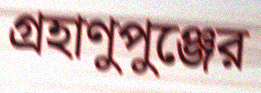
গ্রহাণুপুঞ্জের